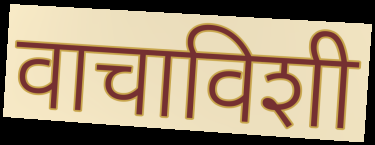
वाचाविशी